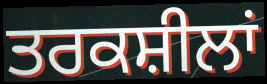
ਤਰਕਸ਼ੀਲਾਂ